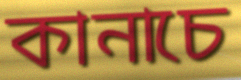
কানাচে